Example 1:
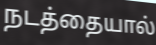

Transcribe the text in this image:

நடத்தையால்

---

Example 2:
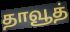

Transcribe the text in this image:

தாவூத்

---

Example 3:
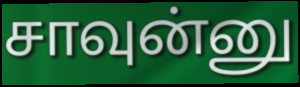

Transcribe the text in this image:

சாவுன்னு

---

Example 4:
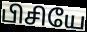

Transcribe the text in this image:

பிசியே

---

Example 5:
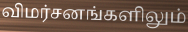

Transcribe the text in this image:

விமர்சனங்களிலும்